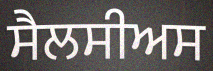
ਸੈਲਸੀਅਸ